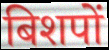
बिशपों